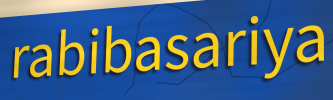
rabibasariya